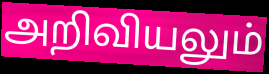
அறிவியலும்